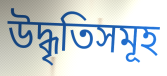
উদ্ধৃতিসমূহ